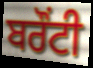
ਬਰੌਂਟੀ